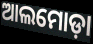
ଆଲମୋଡ଼ା